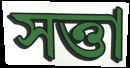
সত্তা